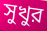
সুখুর